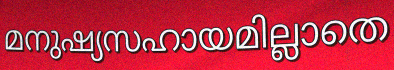
മനുഷ്യസഹായമില്ലാതെ